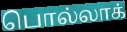
பொல்லாக்